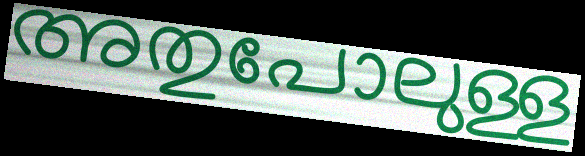
അതുപോലുള്ള